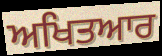
ਅਖਿਤਆਰ